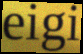
eigi